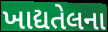
ખાદ્યતેલના